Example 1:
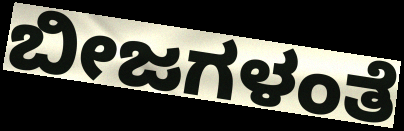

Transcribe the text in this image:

ಬೀಜಗಳಂತೆ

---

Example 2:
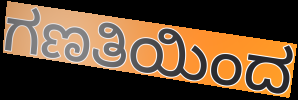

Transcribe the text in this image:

ಗಣತಿಯಿಂದ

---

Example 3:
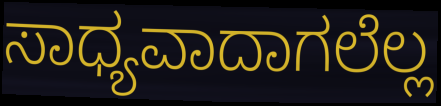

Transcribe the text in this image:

ಸಾಧ್ಯವಾದಾಗಲೆಲ್ಲ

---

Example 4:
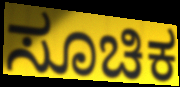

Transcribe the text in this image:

ಸೂಚಿಕ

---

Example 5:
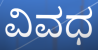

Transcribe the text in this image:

ವಿವಧ